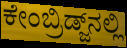
ಕೇಂಬ್ರಿಡ್ಜ್‌ನಲ್ಲಿ